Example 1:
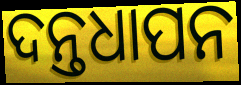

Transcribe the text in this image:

ଦନ୍ତଧାପନ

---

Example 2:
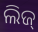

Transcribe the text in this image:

ଲିଜ୍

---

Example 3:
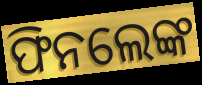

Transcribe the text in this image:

ଫିନଲେଙ୍କ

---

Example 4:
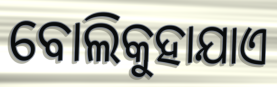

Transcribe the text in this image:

ବୋଲିକୁହାଯାଏ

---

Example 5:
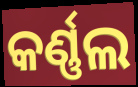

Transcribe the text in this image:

କର୍ଣ୍ଣଲ